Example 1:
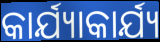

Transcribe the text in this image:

କାର୍ଯ୍ୟାକାର୍ଯ୍ୟ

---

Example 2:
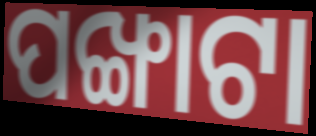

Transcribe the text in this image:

ପଙ୍ଖାଟା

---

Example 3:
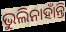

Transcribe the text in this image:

ଭୁଲିନାହାଁନ୍ତି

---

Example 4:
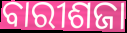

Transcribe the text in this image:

ବାରୀଶଜା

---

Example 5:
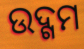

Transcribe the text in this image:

ଉଦ୍ଗମ